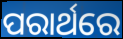
ପରାର୍ଥରେ